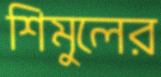
শিমুলের